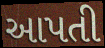
આપતી